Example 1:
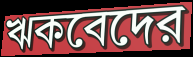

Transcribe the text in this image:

ঋকবেদের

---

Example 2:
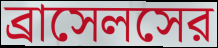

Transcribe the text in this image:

ব্রাসেলসের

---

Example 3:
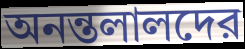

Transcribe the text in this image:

অনন্তলালদের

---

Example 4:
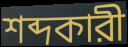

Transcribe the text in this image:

শব্দকারী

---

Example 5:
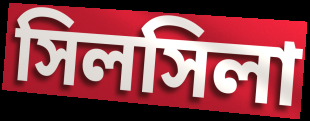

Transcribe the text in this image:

সিলসিলা